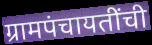
ग्रामपंचायतींची